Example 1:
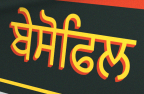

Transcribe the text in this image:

ਬੇਸੋਫਿਲ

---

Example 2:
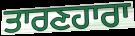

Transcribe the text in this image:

ਤਾਰਣਹਾਰਾ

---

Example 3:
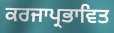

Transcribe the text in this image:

ਕਰਜਾਪ੍ਰਭਾਵਿਤ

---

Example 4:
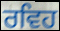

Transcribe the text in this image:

ਰਵਿਹ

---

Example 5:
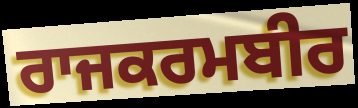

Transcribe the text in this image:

ਰਾਜਕਰਮਬੀਰ